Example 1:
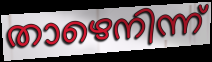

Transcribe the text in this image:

താഴെനിന്ന്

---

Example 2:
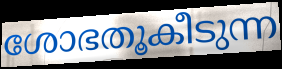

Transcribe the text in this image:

ശോഭതൂകീടുന്ന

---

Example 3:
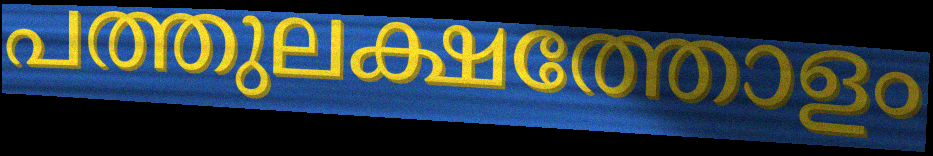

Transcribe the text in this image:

പത്തുലക്ഷത്തോളം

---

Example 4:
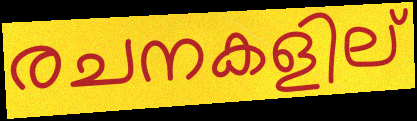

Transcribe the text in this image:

രചനകളില്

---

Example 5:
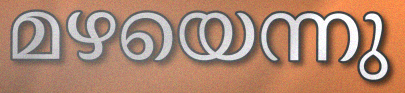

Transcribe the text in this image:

മഴയെന്നു